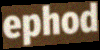
ephod